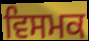
ਵਿਸਮਕ